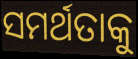
ସମର୍ଥତାକୁ